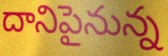
దానిపైనున్న